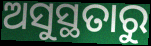
ଅସୁସ୍ଥତାରୁ